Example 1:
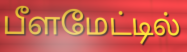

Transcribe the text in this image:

பீளமேட்டில்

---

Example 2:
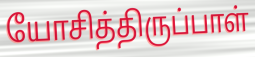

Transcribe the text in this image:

யோசித்திருப்பாள்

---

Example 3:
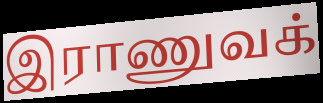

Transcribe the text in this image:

இராணுவக்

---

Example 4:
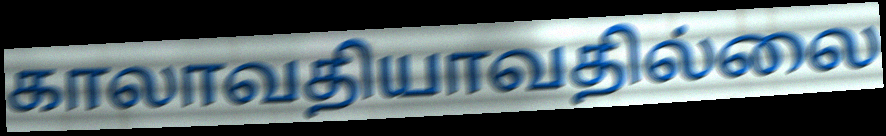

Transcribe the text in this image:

காலாவதியாவதில்லை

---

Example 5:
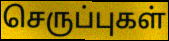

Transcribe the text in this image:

செருப்புகள்